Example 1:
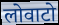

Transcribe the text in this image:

लोवाटो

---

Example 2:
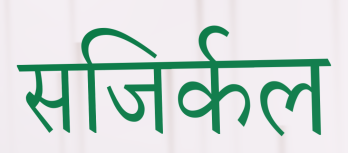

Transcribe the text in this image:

सजिर्कल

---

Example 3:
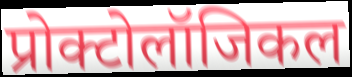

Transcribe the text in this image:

प्रोक्टोलॉजिकल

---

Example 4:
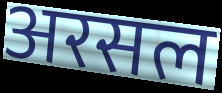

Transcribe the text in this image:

अरसल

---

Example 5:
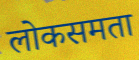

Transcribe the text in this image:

लोकसमता